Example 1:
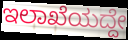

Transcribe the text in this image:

ಇಲಾಖೆಯದ್ದೇ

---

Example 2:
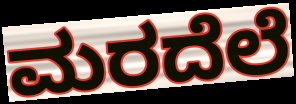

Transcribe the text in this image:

ಮರದೆಲೆ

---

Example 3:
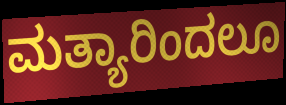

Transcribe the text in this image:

ಮತ್ಯಾರಿಂದಲೂ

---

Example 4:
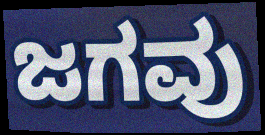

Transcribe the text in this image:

ಜಗವು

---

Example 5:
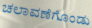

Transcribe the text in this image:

ಚಲಾವಣೆಗೊಂಡು